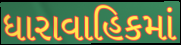
ધારાવાહિકમાં